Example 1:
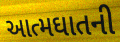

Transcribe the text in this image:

આત્મઘાતની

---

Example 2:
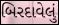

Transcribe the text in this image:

બિરદાવેલું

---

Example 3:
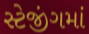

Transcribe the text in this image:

સ્ટેજીંગમાં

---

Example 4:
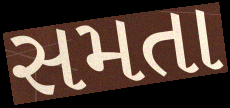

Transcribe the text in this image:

સમતા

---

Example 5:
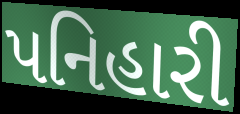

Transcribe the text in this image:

પનિહારી